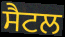
ਸੈਟਲ